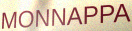
MONNAPPA